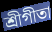
শ্রীগীতা